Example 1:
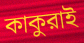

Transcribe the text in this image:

কাকুরাই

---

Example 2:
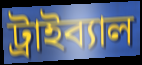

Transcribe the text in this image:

ট্রাইব্যাল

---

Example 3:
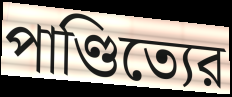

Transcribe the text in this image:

পাণ্ডিত্যের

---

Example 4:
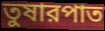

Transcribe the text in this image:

তুষারপাত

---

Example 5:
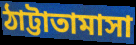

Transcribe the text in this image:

ঠাট্টাতামাসা